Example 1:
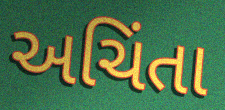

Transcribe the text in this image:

અચિંતા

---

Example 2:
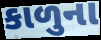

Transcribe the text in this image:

કાળુના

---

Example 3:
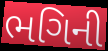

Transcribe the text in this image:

ભગિની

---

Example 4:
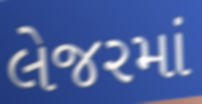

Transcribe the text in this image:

લેજરમાં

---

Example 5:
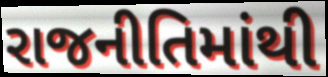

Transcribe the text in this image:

રાજનીતિમાંથી